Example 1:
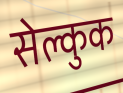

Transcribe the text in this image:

सेल्कुक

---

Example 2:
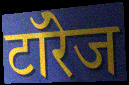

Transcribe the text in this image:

टॉरेज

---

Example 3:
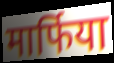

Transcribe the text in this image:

मार्फिया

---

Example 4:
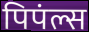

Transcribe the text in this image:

पिपंल्स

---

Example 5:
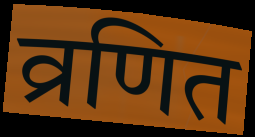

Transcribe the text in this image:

व्रणित